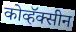
कोव्हॅक्सीन